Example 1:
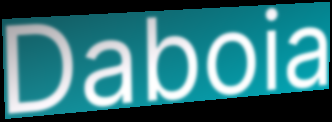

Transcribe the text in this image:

Daboia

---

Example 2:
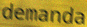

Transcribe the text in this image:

demanda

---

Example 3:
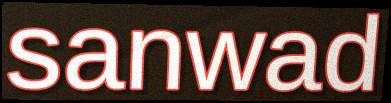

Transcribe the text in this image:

sanwad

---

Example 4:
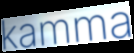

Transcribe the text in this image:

kamma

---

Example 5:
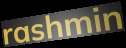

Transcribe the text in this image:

rashmin